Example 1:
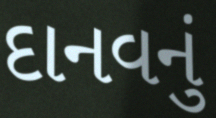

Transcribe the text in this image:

દાનવનું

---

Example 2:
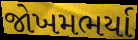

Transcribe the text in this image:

જોખમભર્યા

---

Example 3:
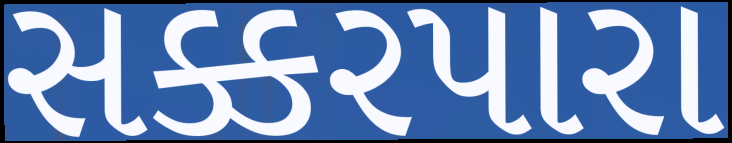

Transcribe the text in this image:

સક્કરપારા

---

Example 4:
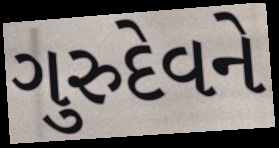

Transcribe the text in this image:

ગુરુદેવને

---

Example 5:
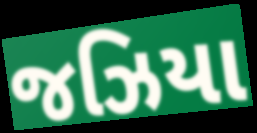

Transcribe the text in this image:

જઝિયા